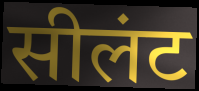
सीलंट